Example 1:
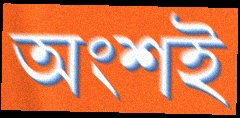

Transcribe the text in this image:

অংশই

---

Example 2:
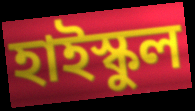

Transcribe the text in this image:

হাইস্কুল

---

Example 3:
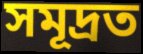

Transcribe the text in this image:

সমূদ্ৰত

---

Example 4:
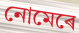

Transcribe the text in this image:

নোমেৰে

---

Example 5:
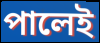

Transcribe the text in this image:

পালেই